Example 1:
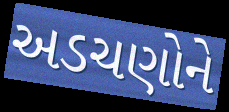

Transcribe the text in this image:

અડચણોને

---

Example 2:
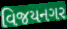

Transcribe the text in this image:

વિજયનગર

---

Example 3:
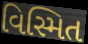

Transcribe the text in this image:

વિસ્મિત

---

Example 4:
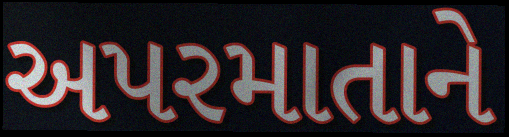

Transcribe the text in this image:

અપરમાતાને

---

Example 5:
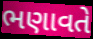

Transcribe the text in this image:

ભણાવતે